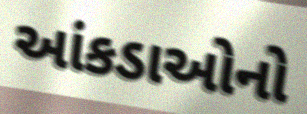
આંકડાઓનો